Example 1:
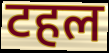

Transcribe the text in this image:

टहल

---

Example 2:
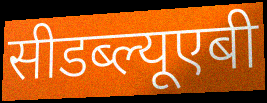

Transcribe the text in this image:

सीडब्ल्यूएबी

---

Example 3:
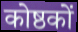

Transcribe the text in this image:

कोष्ठकों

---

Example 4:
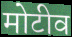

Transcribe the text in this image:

मोटीव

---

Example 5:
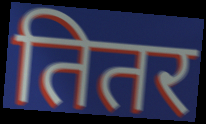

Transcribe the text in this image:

तितर